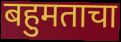
बहुमताचा